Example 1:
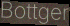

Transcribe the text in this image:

Bottger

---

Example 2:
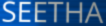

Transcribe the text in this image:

SEETHA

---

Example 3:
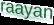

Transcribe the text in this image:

raayan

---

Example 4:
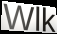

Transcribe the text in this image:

Wlk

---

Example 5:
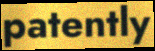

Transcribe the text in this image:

patently